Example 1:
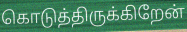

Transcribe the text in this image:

கொடுத்திருக்கிறேன்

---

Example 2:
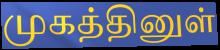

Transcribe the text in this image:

முகத்தினுள்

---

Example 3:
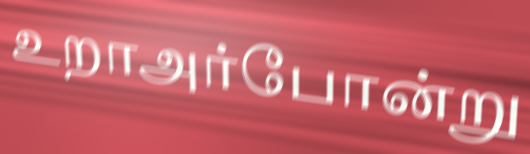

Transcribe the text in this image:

உறாஅர்போன்று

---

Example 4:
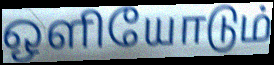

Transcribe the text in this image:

ஒளியோடும்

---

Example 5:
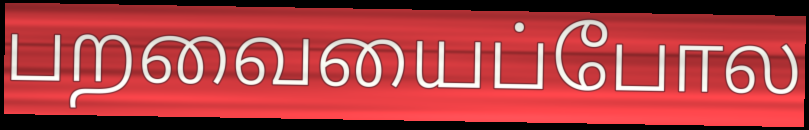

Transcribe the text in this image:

பறவையைப்போல